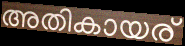
അതികായര്